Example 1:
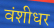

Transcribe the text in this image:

वंशीधर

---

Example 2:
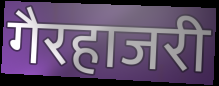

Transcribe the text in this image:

गैरहाजरी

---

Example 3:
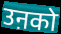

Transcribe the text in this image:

उऩको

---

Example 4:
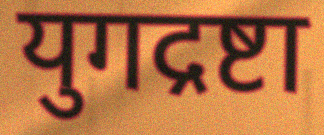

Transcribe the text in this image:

युगद्रष्टा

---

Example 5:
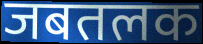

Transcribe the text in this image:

जबतलक